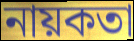
নায়কতা